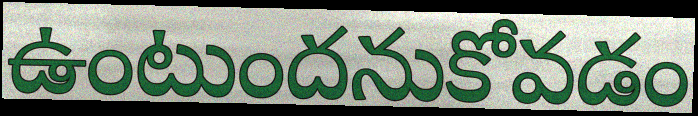
ఉంటుందనుకోవడం